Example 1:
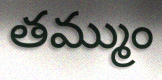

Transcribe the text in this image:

తమ్ముం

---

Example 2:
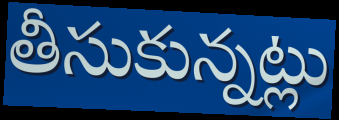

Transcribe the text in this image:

తీసుకున్నట్లు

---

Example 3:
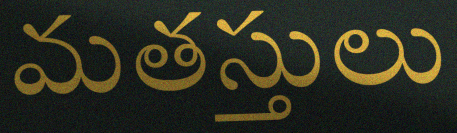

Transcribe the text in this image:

మతస్తులు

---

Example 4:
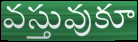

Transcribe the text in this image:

వస్తువుకూ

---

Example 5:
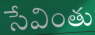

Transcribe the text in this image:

సేవింతు